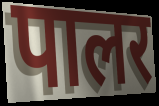
पालर